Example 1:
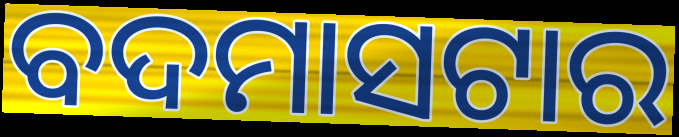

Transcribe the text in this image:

ବଦମାସଟାର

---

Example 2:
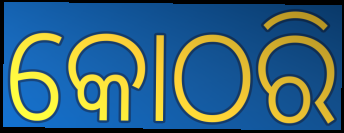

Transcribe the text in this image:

କୋଠରି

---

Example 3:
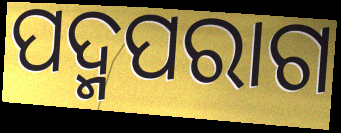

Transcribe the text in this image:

ପଦ୍ମପରାଗ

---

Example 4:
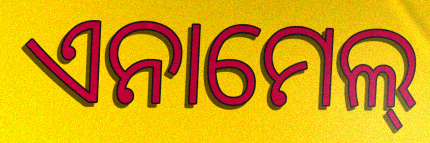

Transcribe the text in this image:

ଏନାମେଲ୍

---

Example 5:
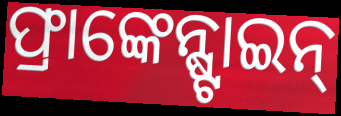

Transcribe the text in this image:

ଫ୍ରାଙ୍କେନ୍ଷ୍ଟାଇନ୍